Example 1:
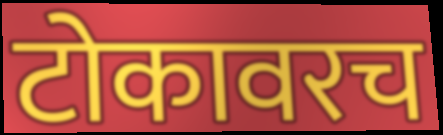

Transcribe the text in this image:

टोकावरच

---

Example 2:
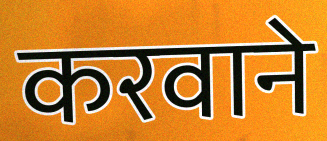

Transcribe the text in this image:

करवाने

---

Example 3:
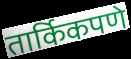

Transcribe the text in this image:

तार्किकपणे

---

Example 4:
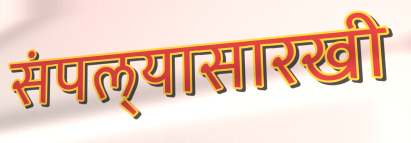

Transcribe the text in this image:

संपल्यासारखी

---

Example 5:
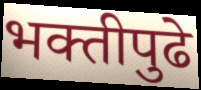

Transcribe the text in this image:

भक्तीपुढे